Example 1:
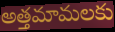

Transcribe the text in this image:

అత్తమామలకు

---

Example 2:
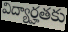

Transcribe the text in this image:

విద్యార్హతకు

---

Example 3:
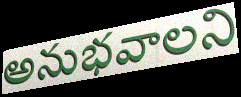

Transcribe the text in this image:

అనుభవాలని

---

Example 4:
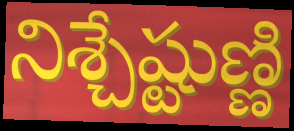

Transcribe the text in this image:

నిశ్చేష్టుణ్ణి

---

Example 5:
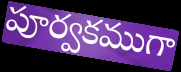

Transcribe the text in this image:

పూర్వకముగా